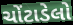
ચોંટાડેલો